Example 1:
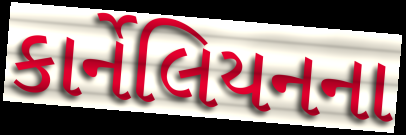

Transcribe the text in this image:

કાર્નેલિયનના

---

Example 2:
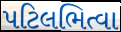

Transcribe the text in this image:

પટિલભિત્વા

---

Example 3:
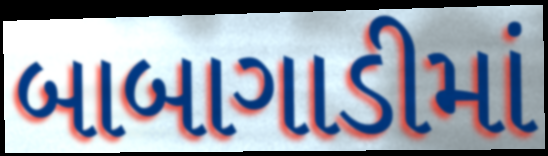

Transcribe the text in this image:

બાબાગાડીમાં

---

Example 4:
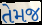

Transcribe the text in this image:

તેમજ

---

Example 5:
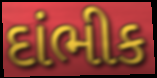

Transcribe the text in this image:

દાંભીક